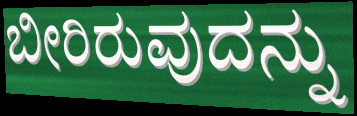
ಬೀರಿರುವುದನ್ನು